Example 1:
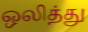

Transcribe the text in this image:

ஒலித்து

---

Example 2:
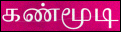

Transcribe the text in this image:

கண்மூடி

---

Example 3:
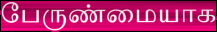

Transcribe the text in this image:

பேருண்மையாக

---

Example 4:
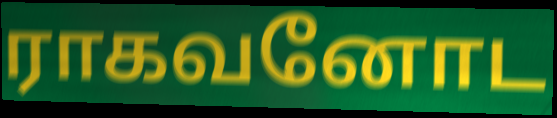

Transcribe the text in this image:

ராகவனோட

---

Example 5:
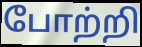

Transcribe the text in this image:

போற்றி